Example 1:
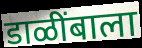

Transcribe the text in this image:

डाळींबाला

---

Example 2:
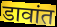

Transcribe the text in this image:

डावांत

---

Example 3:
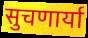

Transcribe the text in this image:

सुचणार्या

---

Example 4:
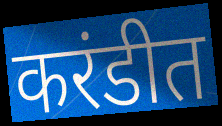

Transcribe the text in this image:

करंडीत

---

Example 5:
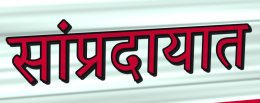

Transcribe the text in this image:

सांप्रदायात